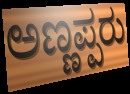
ಅಣ್ಣಪ್ಪರು